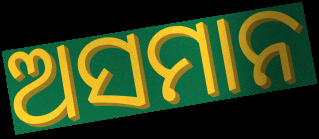
ଅସମାନ